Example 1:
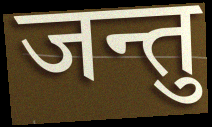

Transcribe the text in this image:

जन्तु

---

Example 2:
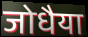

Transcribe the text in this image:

जोधैया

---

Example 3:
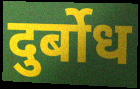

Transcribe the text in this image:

दुर्बोध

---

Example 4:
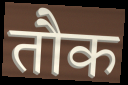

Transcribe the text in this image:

तौक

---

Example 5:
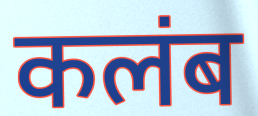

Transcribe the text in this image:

कलंब